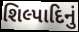
શિલ્પાદિનું